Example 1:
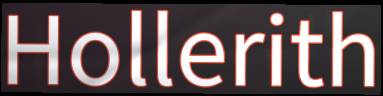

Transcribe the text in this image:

Hollerith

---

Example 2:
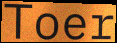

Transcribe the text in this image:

Toer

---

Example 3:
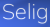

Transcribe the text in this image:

Selig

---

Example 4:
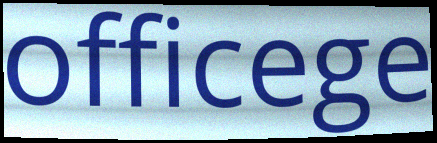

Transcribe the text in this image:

officege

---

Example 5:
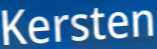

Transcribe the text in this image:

Kersten